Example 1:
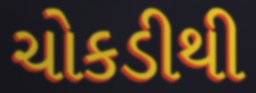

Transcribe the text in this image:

ચોકડીથી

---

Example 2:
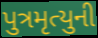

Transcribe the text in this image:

પુત્રમૃત્યુની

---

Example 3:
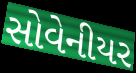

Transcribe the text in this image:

સોવેનીયર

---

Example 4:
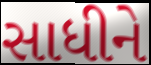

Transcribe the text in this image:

સાધીને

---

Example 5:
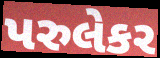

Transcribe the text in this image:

પરુલેકર